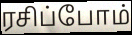
ரசிப்போம்